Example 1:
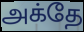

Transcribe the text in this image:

அக்தே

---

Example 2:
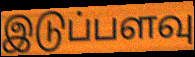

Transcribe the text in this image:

இடுப்பளவு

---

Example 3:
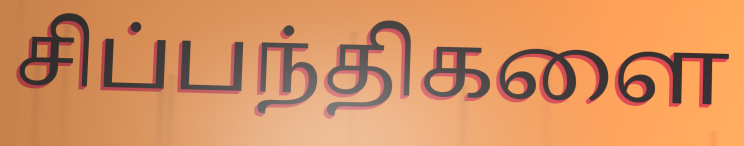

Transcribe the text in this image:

சிப்பந்திகளை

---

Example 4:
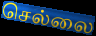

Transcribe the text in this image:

செல்லை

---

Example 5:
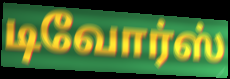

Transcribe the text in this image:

டிவோர்ஸ்